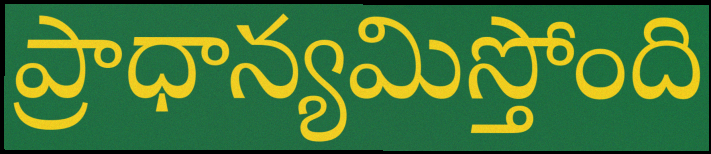
ప్రాధాన్యమిస్తోంది